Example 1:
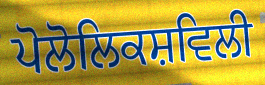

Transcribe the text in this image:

ਪੋਲੋਲਿਕਸ਼ਵਿਲੀ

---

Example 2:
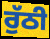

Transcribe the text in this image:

ਰੁੱਠੀ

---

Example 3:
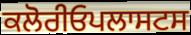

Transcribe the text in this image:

ਕਲੋਰੀਓਪਲਾਸਟਸ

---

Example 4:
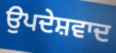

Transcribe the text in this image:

ਉਪਦੇਸ਼ਵਾਦ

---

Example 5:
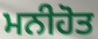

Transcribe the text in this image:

ਮਨੀਹੋਤ